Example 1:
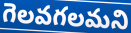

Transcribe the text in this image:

గెలవగలమని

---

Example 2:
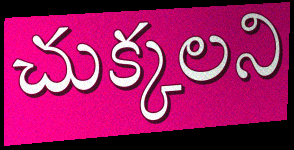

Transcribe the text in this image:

చుక్కలని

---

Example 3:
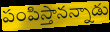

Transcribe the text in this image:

పంపిస్తానన్నాడు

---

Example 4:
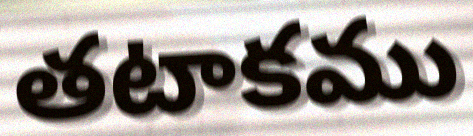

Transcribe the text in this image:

తటాకము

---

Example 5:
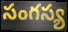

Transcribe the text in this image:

సంగస్య